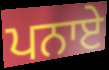
ਪਨਾਏ